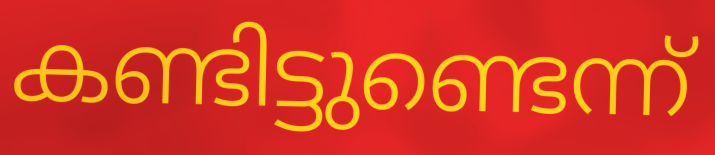
കണ്ടിട്ടുണ്ടെന്ന്